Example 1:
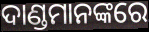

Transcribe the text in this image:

ଦାଣ୍ଡମାନଙ୍କରେ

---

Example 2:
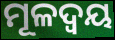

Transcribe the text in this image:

ମୂଳଦ୍ୱୟ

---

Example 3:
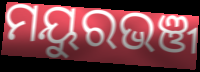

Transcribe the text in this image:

ମୟୁରଭଞ୍ଜ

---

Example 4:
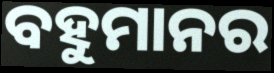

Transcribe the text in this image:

ବହୁମାନର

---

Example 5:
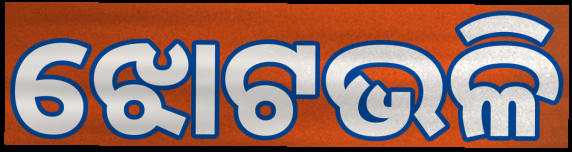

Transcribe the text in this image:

ଝୋଟଭଳି